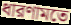
ধারণামতে